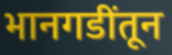
भानगडींतून